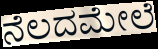
ನೆಲದಮೇಲೆ